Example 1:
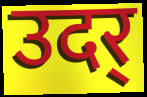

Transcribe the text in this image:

उदर्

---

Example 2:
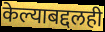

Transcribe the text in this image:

केल्याबद्दलही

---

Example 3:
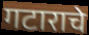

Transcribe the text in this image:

गटाराचे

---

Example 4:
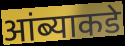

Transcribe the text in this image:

आंब्याकडे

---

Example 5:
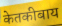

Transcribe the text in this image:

केतकीबाय